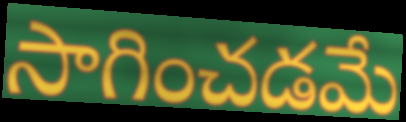
సాగించడమే